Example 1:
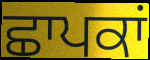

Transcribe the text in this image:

ਛਾਪਕਾਂ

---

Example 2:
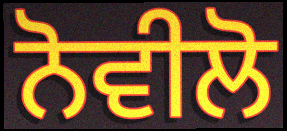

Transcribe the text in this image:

ਨੋਵੀਲੋ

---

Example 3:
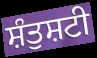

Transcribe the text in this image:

ਸ਼ੰਤੁਸ਼ਟੀ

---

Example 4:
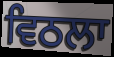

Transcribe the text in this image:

ਵਿਠਲਾ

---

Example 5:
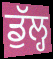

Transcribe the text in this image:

ਡੁੱਲ੍ਹ